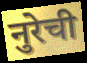
नुरेची